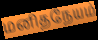
மனிதநேயம்